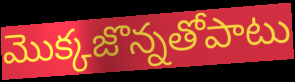
మొక్కజొన్నతోపాటు